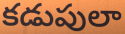
కడుపులా